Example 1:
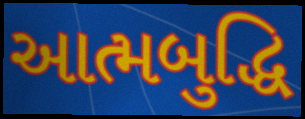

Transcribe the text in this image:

આત્મબુદ્ધિ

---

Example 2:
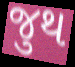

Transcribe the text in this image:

જુથ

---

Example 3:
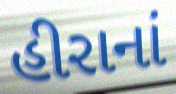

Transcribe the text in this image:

હીરાનાં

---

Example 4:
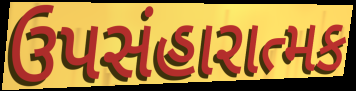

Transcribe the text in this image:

ઉપસંહારાત્મક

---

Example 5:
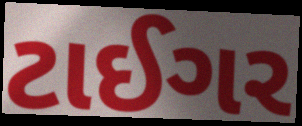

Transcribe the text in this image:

ટાઈગર